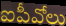
ఐపీవోలు